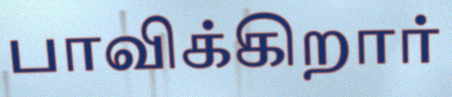
பாவிக்கிறார்